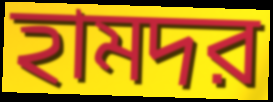
হামদর